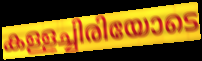
കള്ളച്ചിരിയോടെ